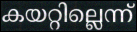
കയറ്റില്ലെന്ന്